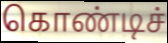
கொண்டிச்